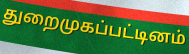
துறைமுகப்பட்டினம்